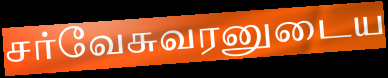
சர்வேசுவரனுடைய